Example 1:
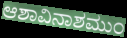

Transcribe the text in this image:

ಆಶಾವಿನಾಶಮುಂ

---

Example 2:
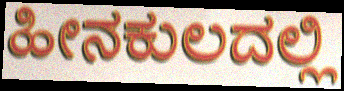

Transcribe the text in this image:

ಹೀನಕುಲದಲ್ಲಿ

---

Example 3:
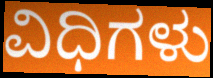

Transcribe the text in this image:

ವಿಧಿಗಳು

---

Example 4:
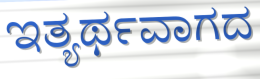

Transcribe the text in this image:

ಇತ್ಯರ್ಥವಾಗದ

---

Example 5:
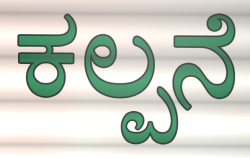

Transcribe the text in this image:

ಕಲ್ಪನೆ